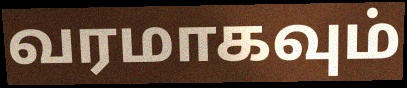
வரமாகவும்